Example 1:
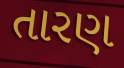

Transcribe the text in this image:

તારણ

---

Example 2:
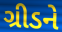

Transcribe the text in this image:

ગ્રીડને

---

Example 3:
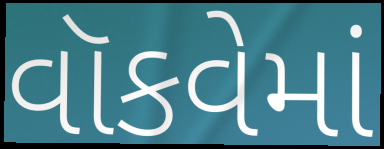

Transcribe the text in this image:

વૉકવેમાં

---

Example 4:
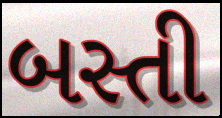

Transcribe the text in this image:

બસ્તી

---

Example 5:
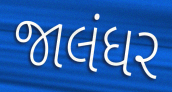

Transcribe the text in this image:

જાલંધર